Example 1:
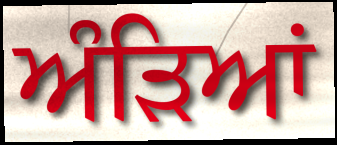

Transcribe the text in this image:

ਅੰੜਿਆਂ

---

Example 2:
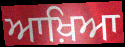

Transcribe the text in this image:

ਆਖ਼ਿਆ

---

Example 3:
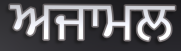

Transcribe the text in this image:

ਅਜਾਮਲ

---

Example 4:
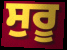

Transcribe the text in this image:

ਸੁਰੂ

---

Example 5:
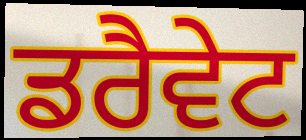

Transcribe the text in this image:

ਡਰੈਵੇਟ